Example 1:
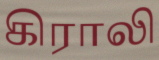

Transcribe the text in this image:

கிராலி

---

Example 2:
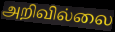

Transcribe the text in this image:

அறிவில்லை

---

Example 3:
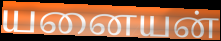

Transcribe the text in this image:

யனையன்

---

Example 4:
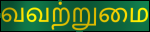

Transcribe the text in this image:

வவற்றுமை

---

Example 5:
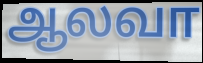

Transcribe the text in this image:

ஆலவா